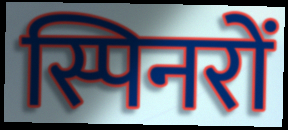
स्पिनरों